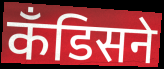
कँडिसने